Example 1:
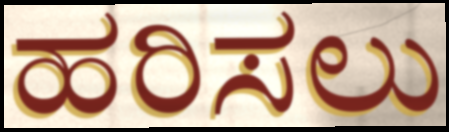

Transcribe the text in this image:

ಹರಿಸಲು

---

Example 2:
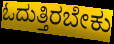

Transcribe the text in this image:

ಓದುತ್ತಿರಬೇಕು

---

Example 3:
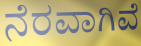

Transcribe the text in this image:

ನೆರವಾಗಿವೆ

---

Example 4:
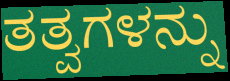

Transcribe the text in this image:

ತತ್ವಗಳನ್ನು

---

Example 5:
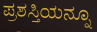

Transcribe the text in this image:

ಪ್ರಶಸ್ತಿಯನ್ನೂ